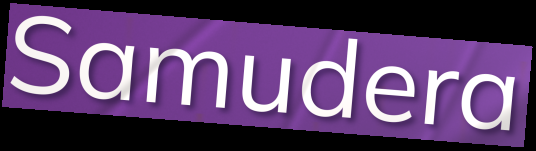
Samudera